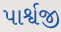
પાર્શ્વજી